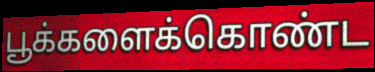
பூக்களைக்கொண்ட